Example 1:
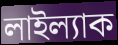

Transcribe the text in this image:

লাইল্যাক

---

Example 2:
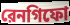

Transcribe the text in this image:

রেনগিফো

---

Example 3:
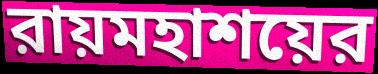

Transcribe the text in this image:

রায়মহাশয়ের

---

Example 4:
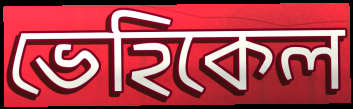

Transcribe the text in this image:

ভেহিকেল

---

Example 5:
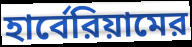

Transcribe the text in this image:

হার্বেরিয়ামের